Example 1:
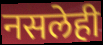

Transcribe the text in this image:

नसलेही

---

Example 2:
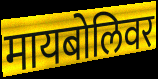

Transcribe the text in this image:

मायबोलिवर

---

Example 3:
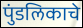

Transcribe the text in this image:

पुंडलिकाचे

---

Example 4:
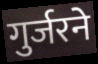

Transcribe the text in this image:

गुर्जरने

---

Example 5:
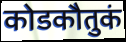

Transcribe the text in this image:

कोडकौतुकं